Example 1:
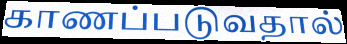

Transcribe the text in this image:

காணப்படுவதால்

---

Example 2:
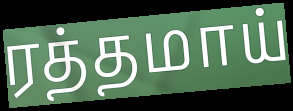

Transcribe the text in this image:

ரத்தமாய்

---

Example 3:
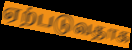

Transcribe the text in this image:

ஏற்படுவதாக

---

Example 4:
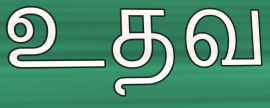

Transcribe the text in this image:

உதவ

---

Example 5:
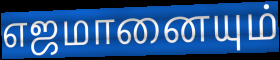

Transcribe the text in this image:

எஜமானையும்